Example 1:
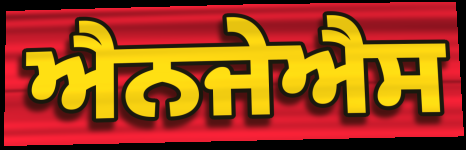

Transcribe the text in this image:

ਐਨਜੇਐਸ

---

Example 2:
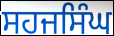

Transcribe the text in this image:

ਸਹਜਸਿੰਘ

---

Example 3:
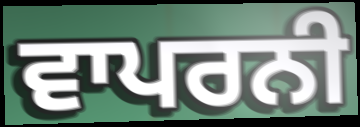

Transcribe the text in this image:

ਵਾਪਰਨੀ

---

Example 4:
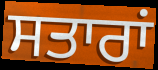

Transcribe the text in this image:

ਸਤਾਰਾਂ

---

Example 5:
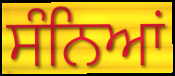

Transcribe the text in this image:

ਸੰਨਿਆਂ